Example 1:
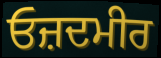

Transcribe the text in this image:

ਓਜ਼ਦਮੀਰ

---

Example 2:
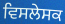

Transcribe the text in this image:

ਵਿਸਲੇਸਕ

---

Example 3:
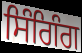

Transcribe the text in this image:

ਸਿੰਗਿੰਗ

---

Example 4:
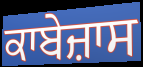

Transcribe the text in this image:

ਕਾਬੇਜ਼ਾਸ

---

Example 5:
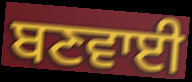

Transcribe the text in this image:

ਬਣਵਾਈ